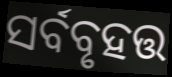
ସର୍ବବୃହତ୍ତ